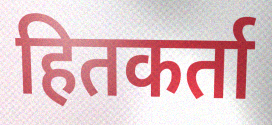
हितकर्ता